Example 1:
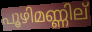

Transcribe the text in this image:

പൂഴിമണ്ണില്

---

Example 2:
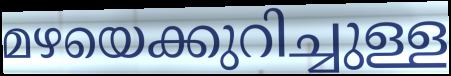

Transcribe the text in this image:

മഴയെക്കുറിച്ചുള്ള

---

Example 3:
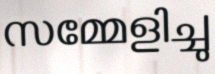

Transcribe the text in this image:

സമ്മേളിച്ചു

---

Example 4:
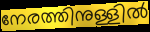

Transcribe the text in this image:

നേരത്തിനുള്ളിൽ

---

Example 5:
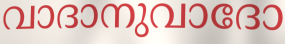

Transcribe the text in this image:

വാദാനുവാദോ